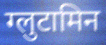
ग्लुटामिन